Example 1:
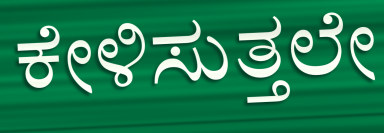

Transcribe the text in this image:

ಕೇಳಿಸುತ್ತಲೇ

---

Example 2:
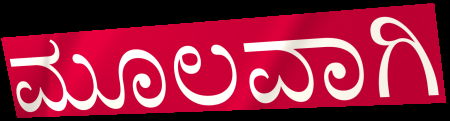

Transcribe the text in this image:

ಮೂಲವಾಗಿ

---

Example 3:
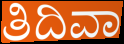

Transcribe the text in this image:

ತಿದಿವಾ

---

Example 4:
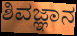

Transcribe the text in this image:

ಶಿವಜ್ಞಾನ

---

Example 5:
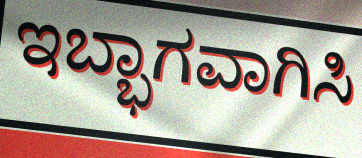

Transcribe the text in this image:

ಇಬ್ಭಾಗವಾಗಿಸಿ